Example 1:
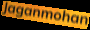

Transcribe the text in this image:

Jaganmohan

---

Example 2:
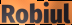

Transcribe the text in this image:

Robiul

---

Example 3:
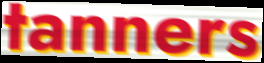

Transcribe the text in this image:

tanners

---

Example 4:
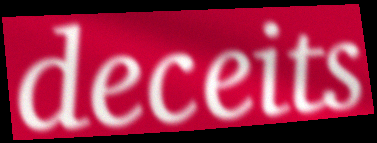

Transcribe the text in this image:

deceits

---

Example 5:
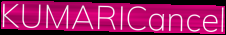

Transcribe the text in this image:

KUMARICancel